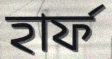
হার্ফ